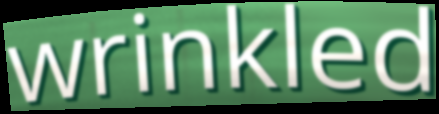
wrinkled